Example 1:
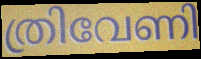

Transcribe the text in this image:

ത്രിവേണി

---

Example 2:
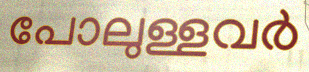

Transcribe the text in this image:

പോലുള്ളവർ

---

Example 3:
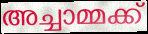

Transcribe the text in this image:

അച്ചാമ്മക്ക്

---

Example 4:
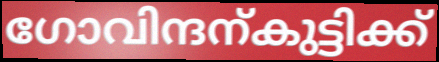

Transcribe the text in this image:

ഗോവിന്ദന്കുട്ടിക്ക്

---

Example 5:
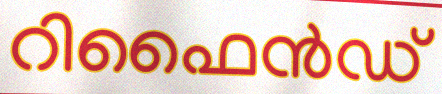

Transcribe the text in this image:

റിഫൈൻഡ്